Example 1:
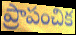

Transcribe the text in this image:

ప్రాపంచిక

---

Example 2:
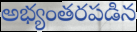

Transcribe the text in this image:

అభ్యంతరపడిన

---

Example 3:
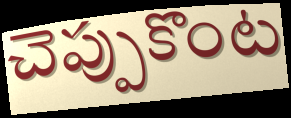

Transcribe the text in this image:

చెప్పుకొంట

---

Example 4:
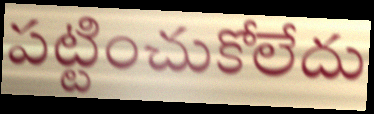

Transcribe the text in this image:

పట్టించుకోలేదు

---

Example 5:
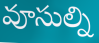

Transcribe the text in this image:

వూసుల్ని